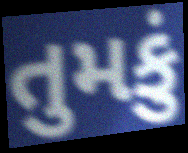
તુમકું